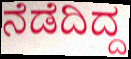
ನೆಡೆದಿದ್ದ